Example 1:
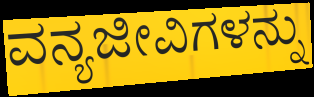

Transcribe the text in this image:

ವನ್ಯಜೀವಿಗಳನ್ನು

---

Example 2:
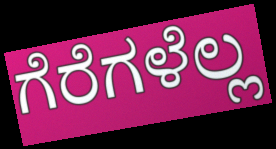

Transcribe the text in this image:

ಗೆರೆಗಳೆಲ್ಲ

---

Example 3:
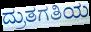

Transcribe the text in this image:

ದ್ರುತಗತಿಯ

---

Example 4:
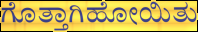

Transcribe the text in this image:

ಗೊತ್ತಾಗಿಹೋಯಿತು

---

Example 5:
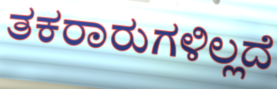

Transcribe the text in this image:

ತಕರಾರುಗಳಿಲ್ಲದೆ